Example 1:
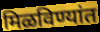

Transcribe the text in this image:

मिळविण्यांत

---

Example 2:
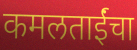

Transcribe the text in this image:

कमलताईंचा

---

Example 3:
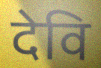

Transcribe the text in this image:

देवि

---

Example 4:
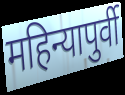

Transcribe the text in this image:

महिन्यापुर्वी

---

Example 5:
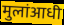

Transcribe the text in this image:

मुलांआधी